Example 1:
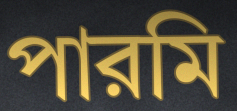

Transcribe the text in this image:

পারমি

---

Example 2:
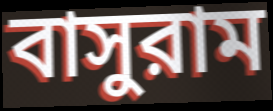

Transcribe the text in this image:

বাসুরাম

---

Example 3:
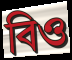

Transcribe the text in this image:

বিও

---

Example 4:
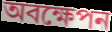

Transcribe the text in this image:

অবক্ষেপন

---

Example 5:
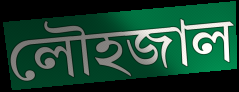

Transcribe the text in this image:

লৌহজাল